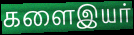
களைஇயர்